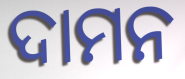
ଦାମନ